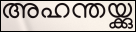
അഹന്തയ്ക്കു